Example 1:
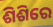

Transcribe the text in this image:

ଶିଶିରେ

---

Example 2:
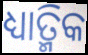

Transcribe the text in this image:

ଧ୍ୟାତ୍ମିକ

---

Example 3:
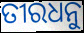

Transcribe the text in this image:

ତୀରଧନୁ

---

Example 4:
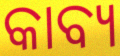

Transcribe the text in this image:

କାବ୍ୟ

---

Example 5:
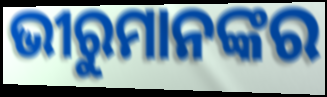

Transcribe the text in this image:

ଭୀରୁମାନଙ୍କର